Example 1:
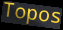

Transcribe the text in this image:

Topos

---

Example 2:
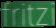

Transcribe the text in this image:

fritzi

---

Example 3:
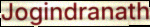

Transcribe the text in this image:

Jogindranath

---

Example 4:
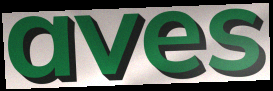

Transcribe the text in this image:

aves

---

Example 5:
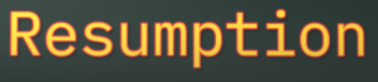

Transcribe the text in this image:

Resumption